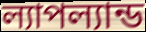
ল্যাপল্যান্ড